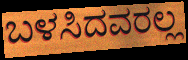
ಬಳಸಿದವರಲ್ಲ